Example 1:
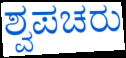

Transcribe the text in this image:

ಶ್ವಪಚರು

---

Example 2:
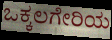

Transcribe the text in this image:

ಒಕ್ಕಲಗೇರಿಯ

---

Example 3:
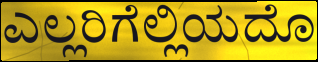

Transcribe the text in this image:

ಎಲ್ಲರಿಗೆಲ್ಲಿಯದೊ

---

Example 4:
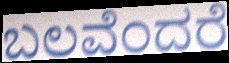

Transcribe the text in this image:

ಬಲವೆಂದರೆ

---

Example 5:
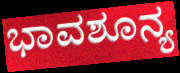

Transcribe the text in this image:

ಭಾವಶೂನ್ಯ